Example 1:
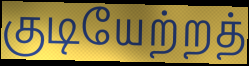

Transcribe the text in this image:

குடியேற்றத்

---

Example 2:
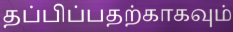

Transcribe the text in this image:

தப்பிப்பதற்காகவும்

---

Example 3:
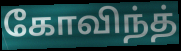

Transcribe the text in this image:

கோவிந்த்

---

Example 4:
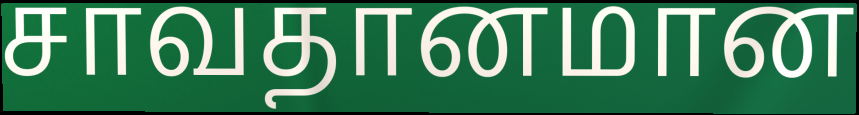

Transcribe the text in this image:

சாவதானமான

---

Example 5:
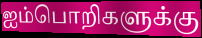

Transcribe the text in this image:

ஐம்பொறிகளுக்கு